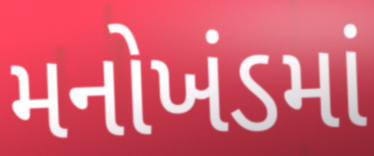
મનોખંડમાં